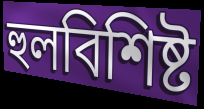
হুলবিশিষ্ট